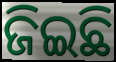
ଜିଇଛି